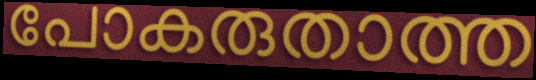
പോകരുതാത്ത